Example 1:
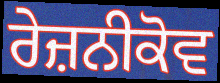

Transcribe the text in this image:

ਰੇਜ਼ਨੀਕੋਵ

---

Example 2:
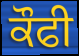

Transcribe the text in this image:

ਕੌਫੀ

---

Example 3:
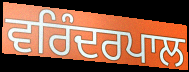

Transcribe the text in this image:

ਵਰਿੰਦਰਪਾਲ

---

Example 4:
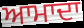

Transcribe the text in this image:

ਆਮਾਦਾ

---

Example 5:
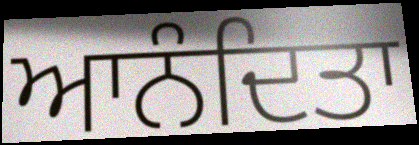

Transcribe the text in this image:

ਆਨੰਦਿਤਾ